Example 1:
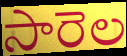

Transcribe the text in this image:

సారెల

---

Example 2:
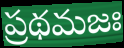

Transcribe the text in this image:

ప్రథమజః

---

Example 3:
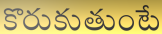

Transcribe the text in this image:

కొరుకుతుంటే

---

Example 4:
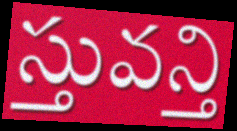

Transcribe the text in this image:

స్తువన్తి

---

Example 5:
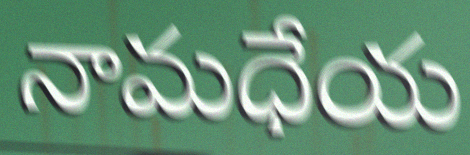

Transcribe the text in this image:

నామధేయ